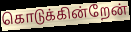
கொடுக்கின்றேன்